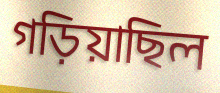
গড়িয়াছিল